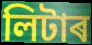
লিটাৰ